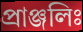
প্রাঞ্জলিঃ